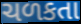
ચળકતા